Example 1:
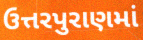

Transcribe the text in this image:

ઉત્તરપુરાણમાં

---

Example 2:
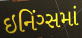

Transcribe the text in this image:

ઇનિંગ્સમાં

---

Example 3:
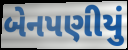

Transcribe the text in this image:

બેનપણીયું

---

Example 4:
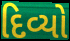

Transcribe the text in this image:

દિવ્યો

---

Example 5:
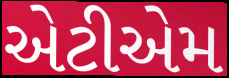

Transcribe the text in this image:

એટીએમ